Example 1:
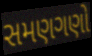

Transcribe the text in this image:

સમણગણો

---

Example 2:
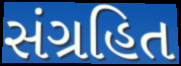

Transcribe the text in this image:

સંગ્રહિત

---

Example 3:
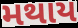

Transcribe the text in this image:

મથાય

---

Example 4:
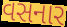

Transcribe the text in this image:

વસનાર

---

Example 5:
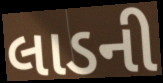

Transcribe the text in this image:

લાડની